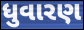
ધુવારણ